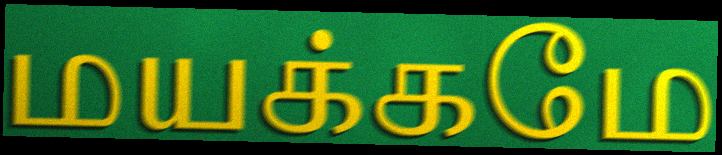
மயக்கமே